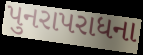
પુનરાપરાધના